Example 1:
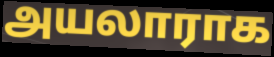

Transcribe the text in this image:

அயலாராக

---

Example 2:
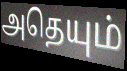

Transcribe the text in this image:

அதெயும்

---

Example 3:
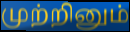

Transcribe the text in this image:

முற்றினும்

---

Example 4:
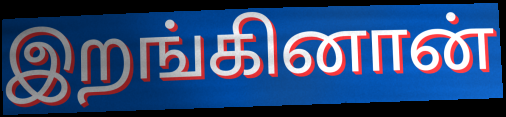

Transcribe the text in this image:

இறங்கினான்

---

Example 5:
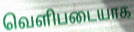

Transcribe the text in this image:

வெளிபடையாக